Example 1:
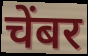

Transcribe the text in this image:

चेंबर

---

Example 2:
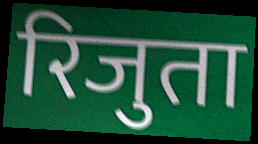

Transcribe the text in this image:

रिजुता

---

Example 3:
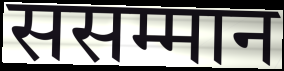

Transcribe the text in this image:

ससम्मान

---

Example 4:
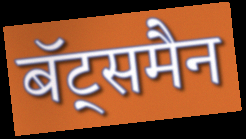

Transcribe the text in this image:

बॅट्समैन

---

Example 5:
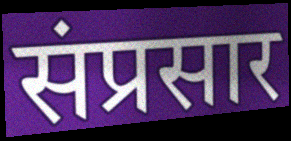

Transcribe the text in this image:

संप्रसार